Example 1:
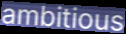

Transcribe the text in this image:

ambitious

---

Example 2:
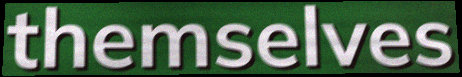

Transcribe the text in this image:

themselves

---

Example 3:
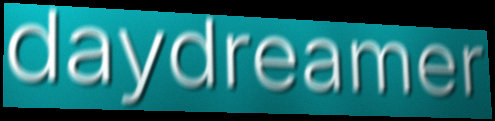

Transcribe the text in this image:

daydreamer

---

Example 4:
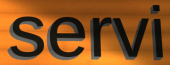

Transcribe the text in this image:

servi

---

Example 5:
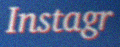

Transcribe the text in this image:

Instagr